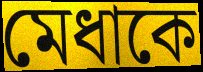
মেধাকে